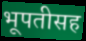
भूपतीसह